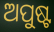
ଅପୁଷ୍ଟ